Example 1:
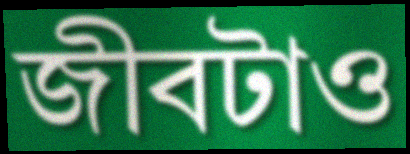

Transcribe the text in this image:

জীবটাও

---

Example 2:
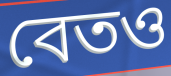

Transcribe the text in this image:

বেতও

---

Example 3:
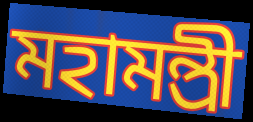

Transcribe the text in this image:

মহামন্ত্রী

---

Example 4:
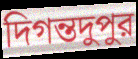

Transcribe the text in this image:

দিগন্তদুপুর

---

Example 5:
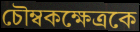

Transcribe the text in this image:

চৌম্বকক্ষেত্রকে